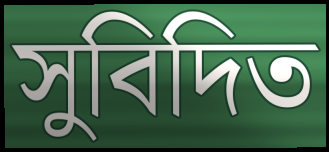
সুবিদিত